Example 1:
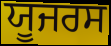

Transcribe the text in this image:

ਯੂਜਰਸ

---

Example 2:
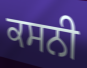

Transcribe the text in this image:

ਕਸਨੀ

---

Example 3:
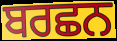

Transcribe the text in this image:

ਬਰਛਨ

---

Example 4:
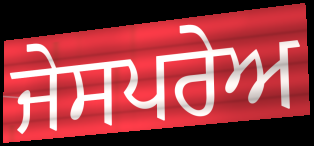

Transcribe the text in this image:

ਜੇਸਪਰੇਅ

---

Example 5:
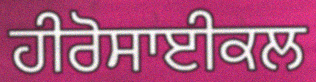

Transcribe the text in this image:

ਹੀਰੋਸਾਈਕਲ